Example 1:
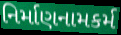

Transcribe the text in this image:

નિર્માણનામકર્મ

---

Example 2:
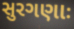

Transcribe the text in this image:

સુરગણાઃ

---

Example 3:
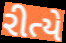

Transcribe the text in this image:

રીત્યે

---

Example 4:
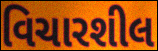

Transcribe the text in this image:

વિચારશીલ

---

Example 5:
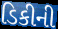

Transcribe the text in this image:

ડિકીની